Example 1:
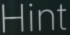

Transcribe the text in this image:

Hint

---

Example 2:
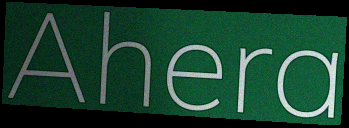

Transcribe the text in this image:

Ahera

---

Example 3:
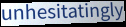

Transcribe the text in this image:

unhesitatingly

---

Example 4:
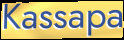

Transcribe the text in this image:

Kassapa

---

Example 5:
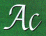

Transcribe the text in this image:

Ac